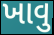
ખાવુ